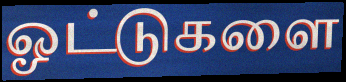
ஓட்டுகளை